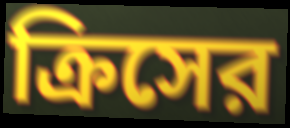
ক্রিসের